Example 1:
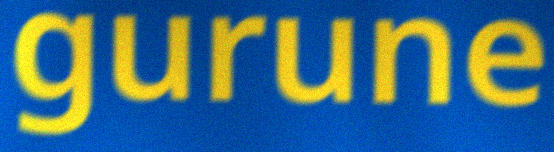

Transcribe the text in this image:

gurune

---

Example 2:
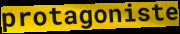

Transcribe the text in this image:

protagoniste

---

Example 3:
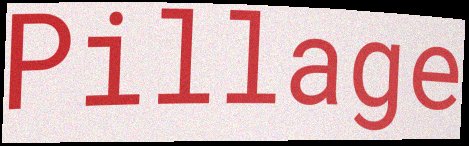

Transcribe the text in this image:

Pillage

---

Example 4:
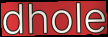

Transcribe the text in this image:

dhole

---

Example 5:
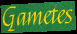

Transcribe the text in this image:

Gametes